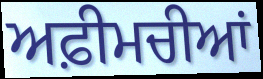
ਅਫ਼ੀਮਚੀਆਂ